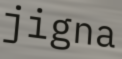
jigna